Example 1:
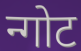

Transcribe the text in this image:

न्गोट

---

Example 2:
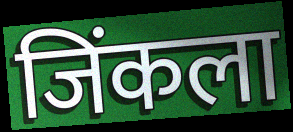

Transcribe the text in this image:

जिंकला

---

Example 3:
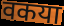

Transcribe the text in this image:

वकया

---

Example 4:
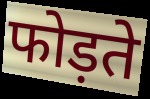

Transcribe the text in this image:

फोड़ते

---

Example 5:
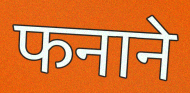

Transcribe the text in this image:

फनाने